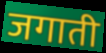
जगाती